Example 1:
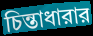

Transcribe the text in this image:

চিন্তাধারার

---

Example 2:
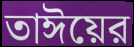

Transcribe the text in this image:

তাঈয়ের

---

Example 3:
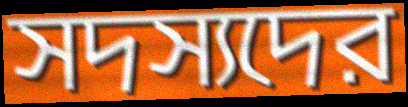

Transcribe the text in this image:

সদস্যদের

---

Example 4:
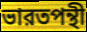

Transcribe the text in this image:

ভারতপন্থী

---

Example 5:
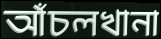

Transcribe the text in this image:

আঁচলখানা